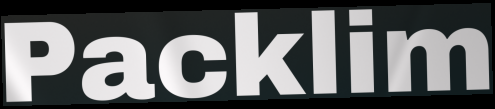
Packlim